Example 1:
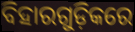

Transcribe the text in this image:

ବିହାରଗୁଡ଼ିକରେ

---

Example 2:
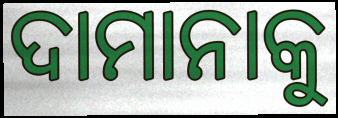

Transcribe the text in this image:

ଦାମାନାକୁ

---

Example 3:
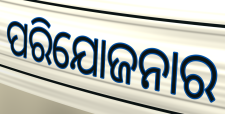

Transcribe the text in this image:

ପରିଯୋଜନାର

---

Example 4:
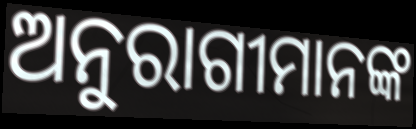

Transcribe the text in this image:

ଅନୁରାଗୀମାନଙ୍କ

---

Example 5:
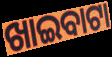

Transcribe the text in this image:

ଖାଇବାଟା